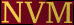
NVM